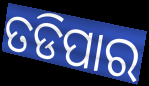
ତଡିପାର